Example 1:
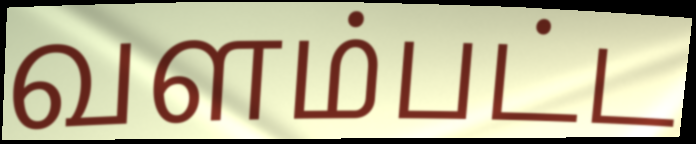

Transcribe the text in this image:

வளம்பட்ட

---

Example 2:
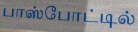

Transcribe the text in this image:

பாஸ்போட்டில்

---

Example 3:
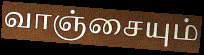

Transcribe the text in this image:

வாஞ்சையும்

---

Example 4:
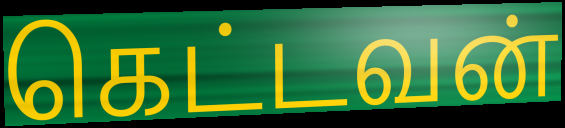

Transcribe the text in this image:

கெட்டவன்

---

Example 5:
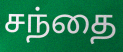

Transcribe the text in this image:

சந்தை